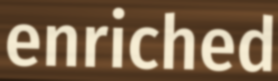
enriched